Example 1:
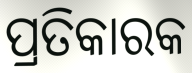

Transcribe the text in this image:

ପ୍ରତିକାରକ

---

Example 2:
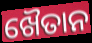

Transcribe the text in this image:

ଖୈତାନ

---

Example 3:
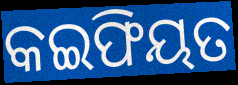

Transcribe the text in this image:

କଇଫିୟତ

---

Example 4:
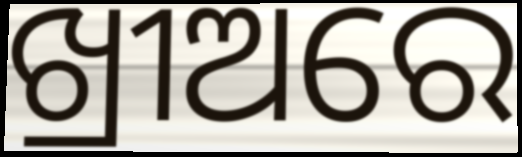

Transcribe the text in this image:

ଖ୍ରୀଅରେ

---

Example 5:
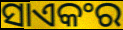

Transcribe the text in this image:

ସାଏକଂର